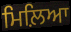
ਮਿਲ਼ਿਆ